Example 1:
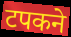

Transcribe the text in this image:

टपकने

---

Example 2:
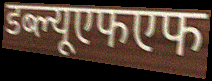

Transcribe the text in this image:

डब्ल्यूएफएफ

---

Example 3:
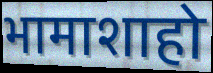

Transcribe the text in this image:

भामाशाहो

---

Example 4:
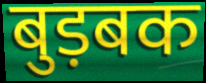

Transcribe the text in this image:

बुड़बक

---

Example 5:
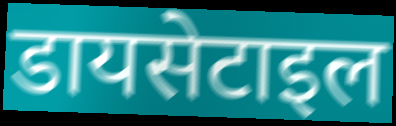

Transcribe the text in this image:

डायसेटाइल